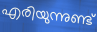
എരിയുന്നുണ്ട്